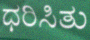
ಧರಿಸಿತು